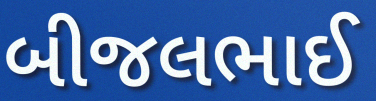
બીજલભાઈ